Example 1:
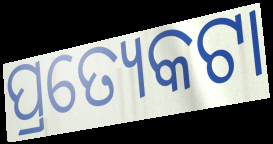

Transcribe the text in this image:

ପ୍ରତ୍ୟେକଟା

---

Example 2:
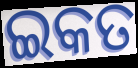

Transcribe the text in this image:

ଇକତ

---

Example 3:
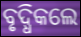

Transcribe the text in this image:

ବୃଦ୍ଧିକଲେ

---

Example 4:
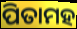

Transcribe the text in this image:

ପିତାମହ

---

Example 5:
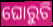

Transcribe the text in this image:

ଘୋରୁଚି